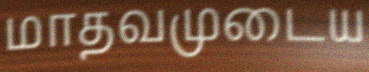
மாதவமுடைய